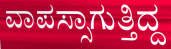
ವಾಪಸ್ಸಾಗುತ್ತಿದ್ದ